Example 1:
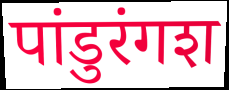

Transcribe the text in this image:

पांडुरंगश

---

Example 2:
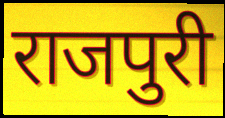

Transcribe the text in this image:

राजपुरी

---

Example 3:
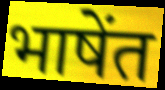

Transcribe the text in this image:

भाषेंत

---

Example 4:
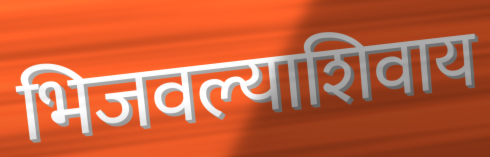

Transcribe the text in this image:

भिजवल्याशिवाय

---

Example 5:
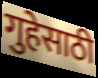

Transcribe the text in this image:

गुहेसाठी